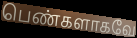
பெண்களாகவே